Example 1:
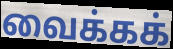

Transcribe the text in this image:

வைக்கக்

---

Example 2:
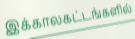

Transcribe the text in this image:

இக்காலகட்டங்களில்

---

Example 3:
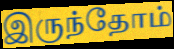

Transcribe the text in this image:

இருந்தோம்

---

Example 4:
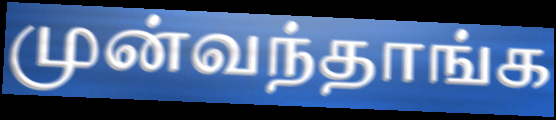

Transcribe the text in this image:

முன்வந்தாங்க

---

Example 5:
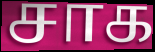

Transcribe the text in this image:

சாக